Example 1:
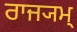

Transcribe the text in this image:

ਰਾਜ੍ਯਮ੍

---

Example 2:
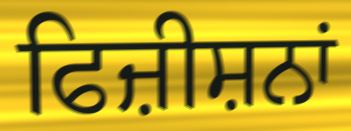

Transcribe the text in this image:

ਫਿਜ਼ੀਸ਼ਨਾਂ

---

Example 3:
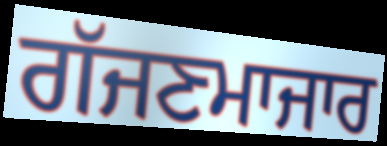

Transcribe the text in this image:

ਗੱਜਣਮਾਜਾਰ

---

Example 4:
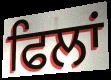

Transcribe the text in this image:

ਫਿਲਾਂ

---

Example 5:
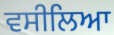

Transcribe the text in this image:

ਵਸੀਲਿਆ